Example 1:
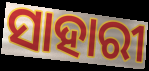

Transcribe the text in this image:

ସାହାରୀ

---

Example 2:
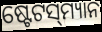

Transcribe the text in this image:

ଷ୍ଟେଟସ୍‌ମ୍ୟାନ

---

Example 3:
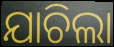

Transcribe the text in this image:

ଯାଚିଲା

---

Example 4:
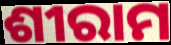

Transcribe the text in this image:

ଶୀରାମ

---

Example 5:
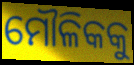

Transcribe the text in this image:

ମୌଳିକକୁ